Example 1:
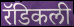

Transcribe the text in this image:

रॅडिकली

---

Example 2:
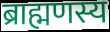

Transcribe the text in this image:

ब्राह्मणस्य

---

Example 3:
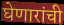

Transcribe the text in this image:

घेणारांची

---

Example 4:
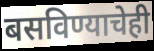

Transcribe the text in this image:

बसविण्याचेही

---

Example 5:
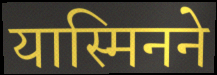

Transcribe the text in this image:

यास्मिनने